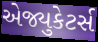
એજ્યુકેટર્સ